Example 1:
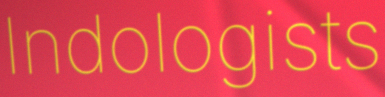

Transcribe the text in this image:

Indologists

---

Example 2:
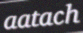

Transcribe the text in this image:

aatach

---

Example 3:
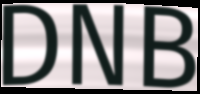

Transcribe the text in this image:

DNB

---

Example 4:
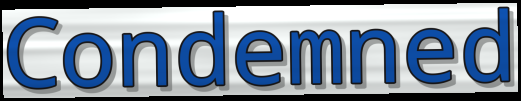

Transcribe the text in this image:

Condemned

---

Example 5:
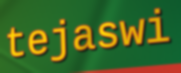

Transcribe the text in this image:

tejaswi